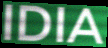
IDIA